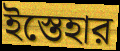
ইস্তেহার